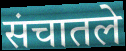
संचातले